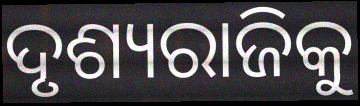
ଦୃଶ୍ୟରାଜିକୁ